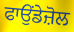
ਫਾਉਂਡੇਜ਼ੋਲ